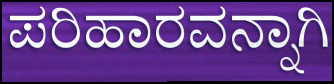
ಪರಿಹಾರವನ್ನಾಗಿ